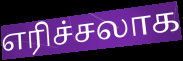
எரிச்சலாக